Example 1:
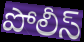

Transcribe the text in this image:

పోలీస్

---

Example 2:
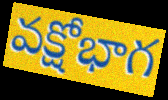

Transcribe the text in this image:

వక్షోభాగ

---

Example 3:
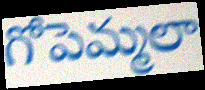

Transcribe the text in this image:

గోపెమ్మలా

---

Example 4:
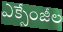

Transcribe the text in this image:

ఎక్సేంజీల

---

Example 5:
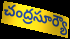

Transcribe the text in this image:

చంద్రసూర్యౌ